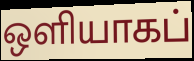
ஒளியாகப்